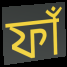
ফাঁ